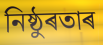
নিষ্ঠুৰতাৰ